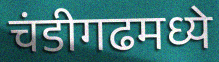
चंडीगढमध्ये